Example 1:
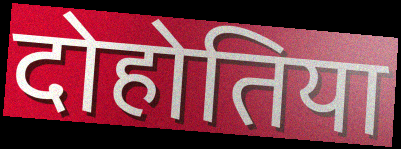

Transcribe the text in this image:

दोहोतिया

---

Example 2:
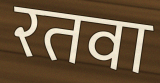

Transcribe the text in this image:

रतवा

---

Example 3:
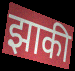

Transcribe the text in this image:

झाकी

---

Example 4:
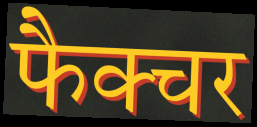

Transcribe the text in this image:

फैक्चर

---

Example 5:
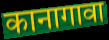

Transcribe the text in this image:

कानागावा